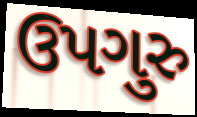
ઉપગુરુ